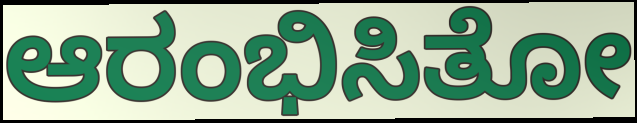
ಆರಂಭಿಸಿತೋ